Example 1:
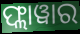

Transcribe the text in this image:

ଫ୍ଲାୱାର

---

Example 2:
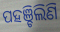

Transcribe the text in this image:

ପହଞ୍ଚିଲିଣି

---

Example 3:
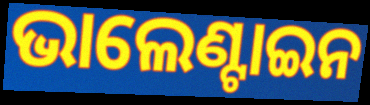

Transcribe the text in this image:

ଭାଲେଣ୍ଟାଇନ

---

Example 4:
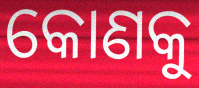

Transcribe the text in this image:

କୋଣକୁ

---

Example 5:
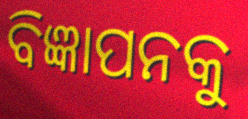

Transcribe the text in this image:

ବିଜ୍ଞାପନକୁ